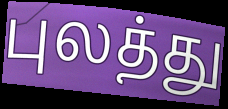
புலத்து